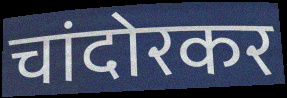
चांदोरकर